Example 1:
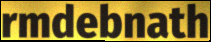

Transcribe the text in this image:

rmdebnath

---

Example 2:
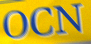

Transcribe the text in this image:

OCN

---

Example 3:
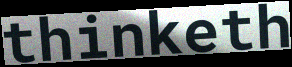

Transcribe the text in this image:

thinketh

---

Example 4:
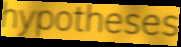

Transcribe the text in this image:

hypotheses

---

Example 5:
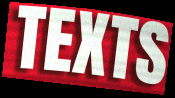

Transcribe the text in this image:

TEXTS